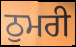
ਠੁਮਰੀ